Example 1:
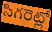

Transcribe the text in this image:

సిగరెట్లో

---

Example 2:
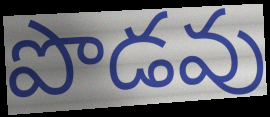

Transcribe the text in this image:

పొడవు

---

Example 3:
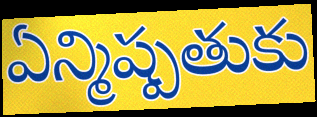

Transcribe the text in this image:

ఏన్మిష్పతుకు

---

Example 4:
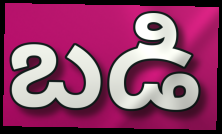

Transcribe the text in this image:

బడి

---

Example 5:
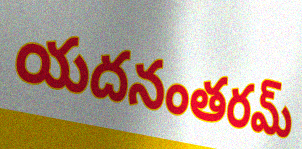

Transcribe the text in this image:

యదనంతరమ్